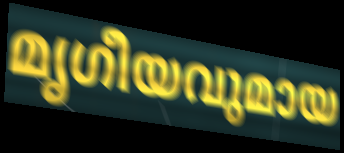
മൃഗീയവുമായ